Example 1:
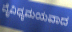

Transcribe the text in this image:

ವೈವಿಧ್ಯಮಯವಾದ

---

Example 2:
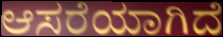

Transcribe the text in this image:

ಆಸರೆಯಾಗಿದೆ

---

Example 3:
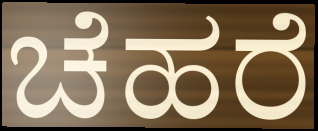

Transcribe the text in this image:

ಚೆಹರೆ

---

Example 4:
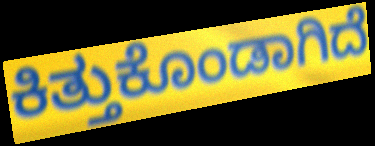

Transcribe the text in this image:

ಕಿತ್ತುಕೊಂಡಾಗಿದೆ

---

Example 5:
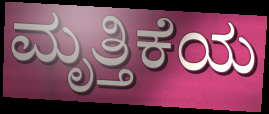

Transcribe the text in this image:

ಮೃತ್ತಿಕೆಯ